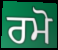
ਰਮੋ